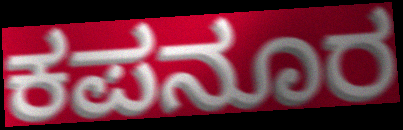
ಕಪನೂರ